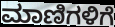
ಮಾಣಿಗಳಿಗೆ